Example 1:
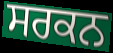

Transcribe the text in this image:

ਸਰਕਨ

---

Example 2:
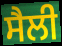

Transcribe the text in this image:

ਸੈਲੀ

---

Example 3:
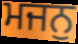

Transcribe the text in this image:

ਮਜਨੁ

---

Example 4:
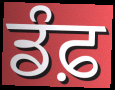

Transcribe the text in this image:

ਡੰਫ਼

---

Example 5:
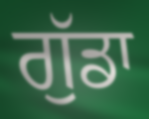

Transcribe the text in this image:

ਗੁੱਡਾ